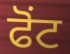
ਫੋਂਟ